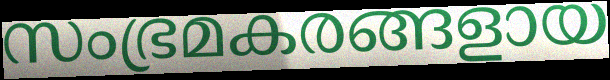
സംഭ്രമകരങ്ങളായ